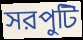
সরপুটি